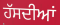
ਹੱਸਦੀਆਂ